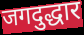
जगदुद्धार